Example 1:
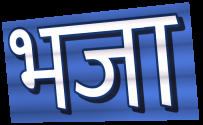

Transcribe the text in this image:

भजा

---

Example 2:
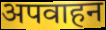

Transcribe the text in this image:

अपवाहन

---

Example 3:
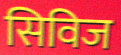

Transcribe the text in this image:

सिविज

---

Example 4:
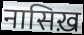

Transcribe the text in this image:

नासिख़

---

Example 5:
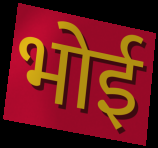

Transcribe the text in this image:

भोई